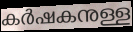
കർഷകനുള്ള